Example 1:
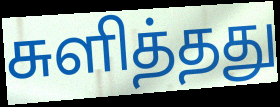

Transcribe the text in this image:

சுளித்தது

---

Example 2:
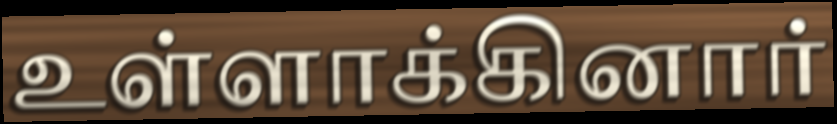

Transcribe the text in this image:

உள்ளாக்கினார்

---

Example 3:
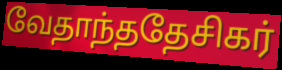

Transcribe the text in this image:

வேதாந்ததேசிகர்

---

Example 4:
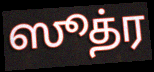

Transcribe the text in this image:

ஸூத்ர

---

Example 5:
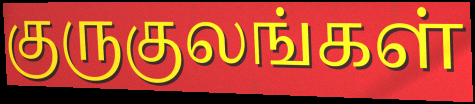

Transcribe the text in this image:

குருகுலங்கள்